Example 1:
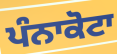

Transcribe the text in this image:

ਪੰਨਾਕੋਟਾ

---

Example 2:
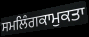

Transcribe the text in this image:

ਸਮਲਿੰਗਕਾਮੁਕਤਾ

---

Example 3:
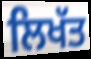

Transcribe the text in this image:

ਲਿਖੱਤ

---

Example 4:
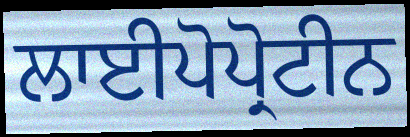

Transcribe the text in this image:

ਲਾਈਪੋਪ੍ਰੋਟੀਨ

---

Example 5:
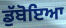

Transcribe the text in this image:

ਡੁੱਬੋਇਆ